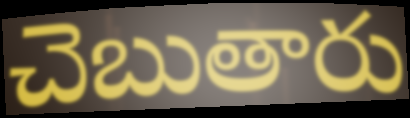
చెబుతారు